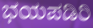
ಭಯಪಡಿರಿ